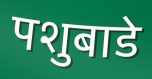
पशुबाडे